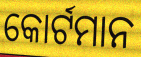
କୋର୍ଟମାନ